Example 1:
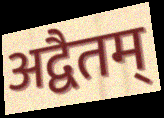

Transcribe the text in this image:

अद्वैतम्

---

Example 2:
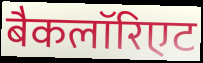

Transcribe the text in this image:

बैकलॉरिएट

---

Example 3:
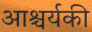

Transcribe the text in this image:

आश्चर्यकी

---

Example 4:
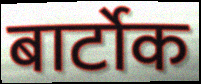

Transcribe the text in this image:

बार्टोक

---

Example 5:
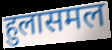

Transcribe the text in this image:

हुलासमल